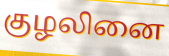
குழலினை